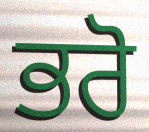
ਭਰੋ